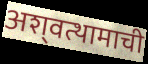
अश्वत्थामाची